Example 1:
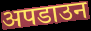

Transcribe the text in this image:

अपडाउन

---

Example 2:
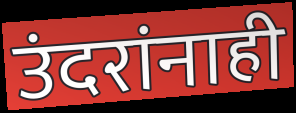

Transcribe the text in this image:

उंदरांनाही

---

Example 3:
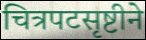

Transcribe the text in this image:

चित्रपटसृष्टीने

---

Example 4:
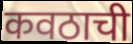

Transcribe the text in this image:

कवठाची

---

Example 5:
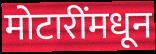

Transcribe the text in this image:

मोटारींमधून